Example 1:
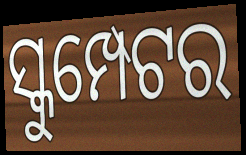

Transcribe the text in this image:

ସ୍କୁମ୍ପେଟର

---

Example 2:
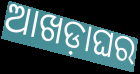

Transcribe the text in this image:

ଆଖଡ଼ାଘର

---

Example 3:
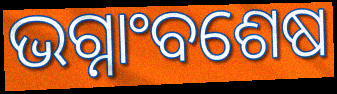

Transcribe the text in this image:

ଭଗ୍ନାଂବଶେଷ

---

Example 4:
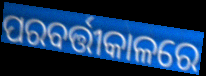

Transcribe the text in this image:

ପରବର୍ତ୍ତୀକାଳରେ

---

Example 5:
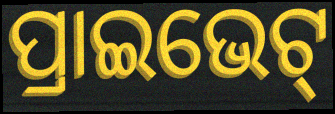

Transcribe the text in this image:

ପ୍ରାଇଭେଟ୍